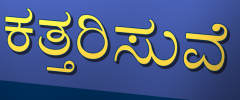
ಕತ್ತರಿಸುವೆ